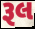
રૂલ